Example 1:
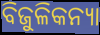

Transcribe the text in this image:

ବିଜୁଳିକନ୍ୟା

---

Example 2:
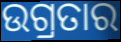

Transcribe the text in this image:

ଉଗ୍ରତାର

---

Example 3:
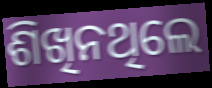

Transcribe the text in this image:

ଶିଖିନଥିଲେ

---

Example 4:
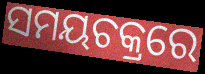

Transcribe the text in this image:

ସମୟଚକ୍ରରେ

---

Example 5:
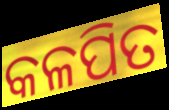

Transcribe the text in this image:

କଳପିତ